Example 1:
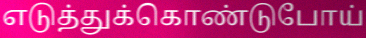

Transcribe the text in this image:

எடுத்துக்கொண்டுபோய்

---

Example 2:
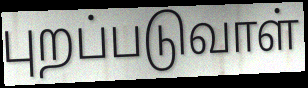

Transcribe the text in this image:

புறப்படுவாள்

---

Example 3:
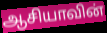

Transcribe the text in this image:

ஆசியாவின்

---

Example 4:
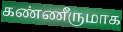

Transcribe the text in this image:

கண்ணீருமாக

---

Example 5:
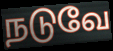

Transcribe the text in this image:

நடுவே